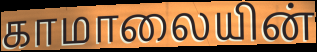
காமாலையின்